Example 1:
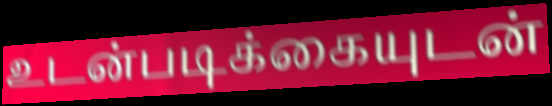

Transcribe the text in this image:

உடன்படிக்கையுடன்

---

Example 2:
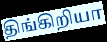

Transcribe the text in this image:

திங்கிறியா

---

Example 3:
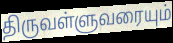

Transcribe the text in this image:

திருவள்ளுவரையும்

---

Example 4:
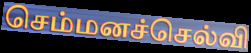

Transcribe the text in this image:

செம்மனச்செல்வி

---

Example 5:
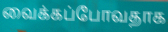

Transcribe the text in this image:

வைக்கப்போவதாக